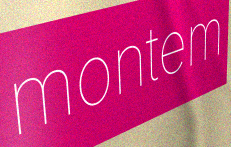
montem